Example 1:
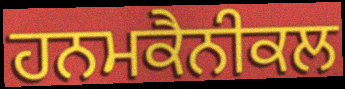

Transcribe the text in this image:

ਹਨਮਕੈਨੀਕਲ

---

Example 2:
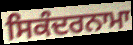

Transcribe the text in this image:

ਸਿਕੰਦਰਨਾਮਾ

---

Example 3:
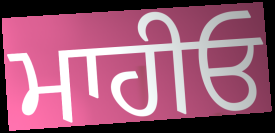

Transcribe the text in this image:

ਮਾਹੀਓ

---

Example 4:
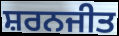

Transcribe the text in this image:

ਸ਼ਰਨਜੀਤ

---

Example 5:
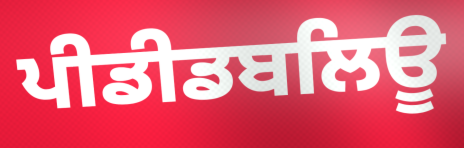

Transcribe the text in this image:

ਪੀਡੀਡਬਲਿਊ